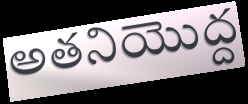
అతనియొద్ద